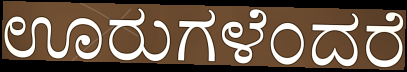
ಊರುಗಳೆಂದರೆ